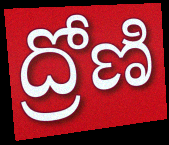
ద్రోణి